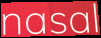
nasal